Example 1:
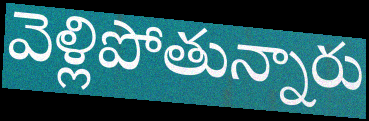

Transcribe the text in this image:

వెళ్లిపోతున్నారు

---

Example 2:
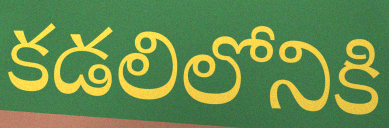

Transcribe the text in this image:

కడలిలోనికి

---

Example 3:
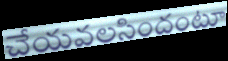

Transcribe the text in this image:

చేయవలసిందంటూ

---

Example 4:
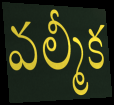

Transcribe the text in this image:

వల్మీక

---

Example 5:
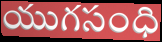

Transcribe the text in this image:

యుగసంధి